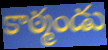
కాఠ్మండు